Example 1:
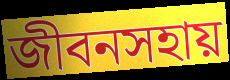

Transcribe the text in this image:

জীবনসহায়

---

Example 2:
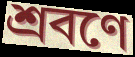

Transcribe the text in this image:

শ্রবণে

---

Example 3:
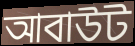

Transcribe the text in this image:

আবাউট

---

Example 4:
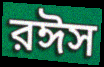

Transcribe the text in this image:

রঈস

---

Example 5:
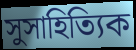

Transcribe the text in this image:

সুসাহিত্যিক